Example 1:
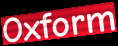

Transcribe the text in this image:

Oxform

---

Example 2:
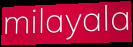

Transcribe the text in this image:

milayala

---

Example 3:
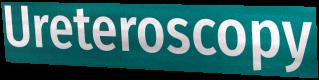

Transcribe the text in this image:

Ureteroscopy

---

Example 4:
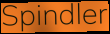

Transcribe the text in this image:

Spindler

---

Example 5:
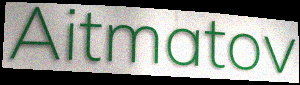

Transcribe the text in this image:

Aitmatov